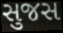
સુજસ